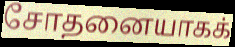
சோதனையாகக்